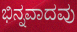
ಭಿನ್ನವಾದವು